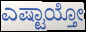
ಎಷ್ಟಾಯ್ತೋ